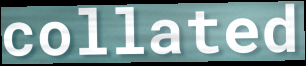
collated